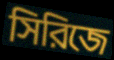
সিরিজে